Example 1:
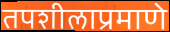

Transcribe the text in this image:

तपशीलाप्रमाणे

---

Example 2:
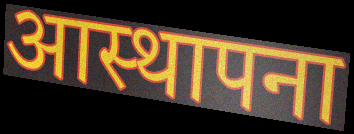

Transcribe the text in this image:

आस्थापना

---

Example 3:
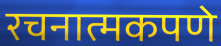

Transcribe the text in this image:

रचनात्मकपणे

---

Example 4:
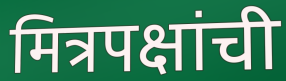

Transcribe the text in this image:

मित्रपक्षांची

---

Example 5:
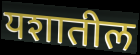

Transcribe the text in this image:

यशातील